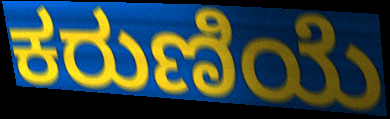
ಕರುಣಿಯೆ